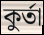
কুৰ্তা